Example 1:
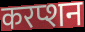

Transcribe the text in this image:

करप्‍शन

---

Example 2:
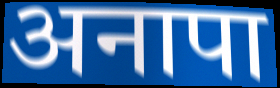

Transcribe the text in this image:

अनापा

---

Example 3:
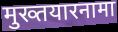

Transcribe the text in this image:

मुख्तयारनामा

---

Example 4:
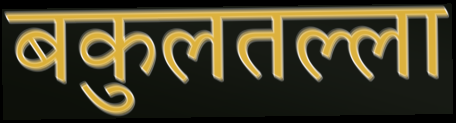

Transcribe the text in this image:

बकुलतल्ला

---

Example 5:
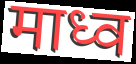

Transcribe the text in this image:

माध्व